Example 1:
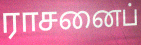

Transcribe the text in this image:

ராசனைப்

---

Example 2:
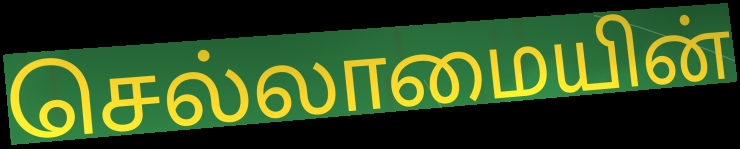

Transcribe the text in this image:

செல்லாமையின்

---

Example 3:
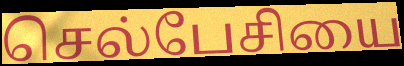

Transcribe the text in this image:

செல்பேசியை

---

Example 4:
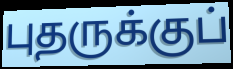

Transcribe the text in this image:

புதருக்குப்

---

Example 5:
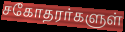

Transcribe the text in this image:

சகோதரர்களுள்